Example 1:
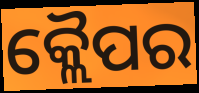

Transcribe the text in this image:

କ୍ଲୈପର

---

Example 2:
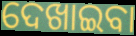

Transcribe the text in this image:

ଦେଖାଇବା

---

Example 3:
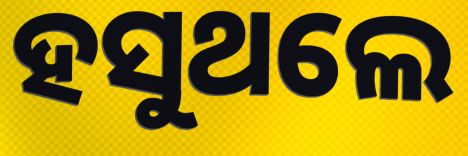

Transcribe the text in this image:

ହସୁଥଲେ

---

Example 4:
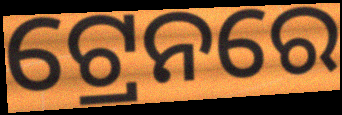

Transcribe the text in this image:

ଟ୍ରେନରେ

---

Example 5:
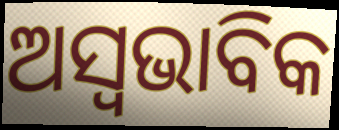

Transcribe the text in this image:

ଅସ୍ୱଭାବିକ